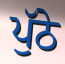
ਪੁੱਠੇ